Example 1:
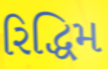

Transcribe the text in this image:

રિદ્ધિમ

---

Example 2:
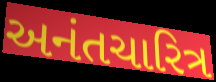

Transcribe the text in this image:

અનંતચારિત્ર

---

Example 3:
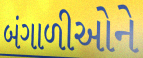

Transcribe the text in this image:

બંગાળીઓને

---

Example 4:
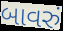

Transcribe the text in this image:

બાવરું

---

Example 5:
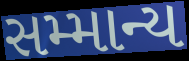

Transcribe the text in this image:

સમ્માન્ય